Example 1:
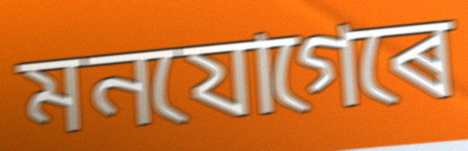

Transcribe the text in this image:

মনযোগেৰে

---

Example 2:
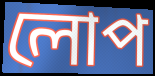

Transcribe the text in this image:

লোপ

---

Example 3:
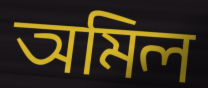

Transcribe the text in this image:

অমিল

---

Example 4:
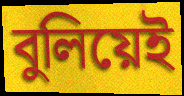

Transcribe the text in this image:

বুলিয়েই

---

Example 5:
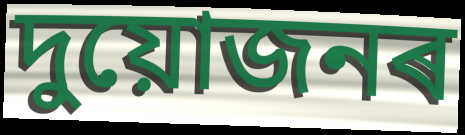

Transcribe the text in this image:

দুয়োজনৰ